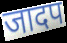
जादप